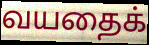
வயதைக்